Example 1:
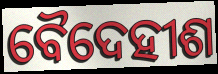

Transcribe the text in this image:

ବୈଦେହୀଶ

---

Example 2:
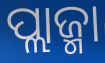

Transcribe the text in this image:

ପ୍ଲାଜ୍ମା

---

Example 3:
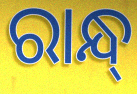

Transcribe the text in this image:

ରାନ୍ଧ୍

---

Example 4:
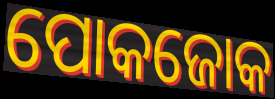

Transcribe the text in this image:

ପୋକଜୋକ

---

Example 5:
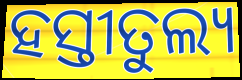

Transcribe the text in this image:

ହସ୍ତୀତୁଲ୍ୟ